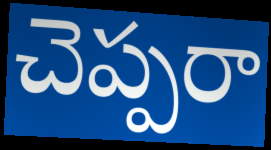
చెప్పరా